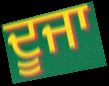
ਦੂਜਾ